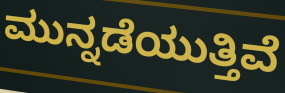
ಮುನ್ನಡೆಯುತ್ತಿವೆ